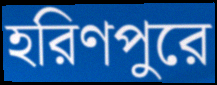
হরিণপুরে